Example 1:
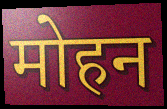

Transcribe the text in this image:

मोहन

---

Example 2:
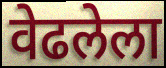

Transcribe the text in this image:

वेढलेला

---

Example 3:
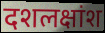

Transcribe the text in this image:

दशलक्षांश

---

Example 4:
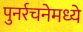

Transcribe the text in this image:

पुनर्रचनेमध्ये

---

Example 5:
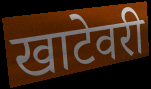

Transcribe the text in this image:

खाटेवरी